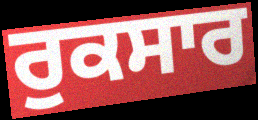
ਰੁਕਸਾਰ